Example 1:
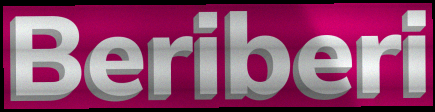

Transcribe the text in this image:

Beriberi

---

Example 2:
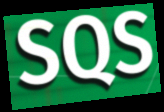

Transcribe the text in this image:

SQS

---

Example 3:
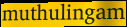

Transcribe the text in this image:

muthulingam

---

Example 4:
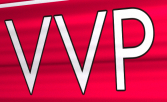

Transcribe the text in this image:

VVP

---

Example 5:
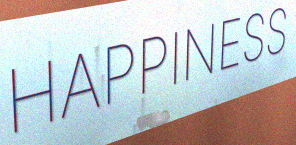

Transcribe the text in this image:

HAPPINESS